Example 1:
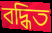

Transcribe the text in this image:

বদ্ধিত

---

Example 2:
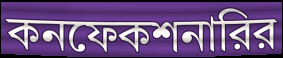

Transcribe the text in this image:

কনফেকশনারির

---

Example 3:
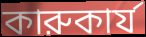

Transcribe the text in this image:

কারুকার্য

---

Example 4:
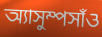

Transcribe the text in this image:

অ্যাসুম্পসাঁও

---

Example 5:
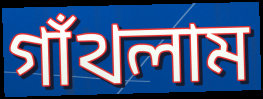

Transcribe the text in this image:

গাঁথলাম